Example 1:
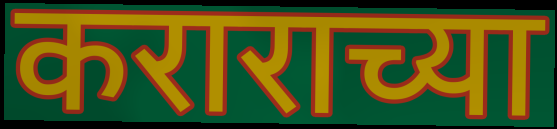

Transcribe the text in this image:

कराराच्या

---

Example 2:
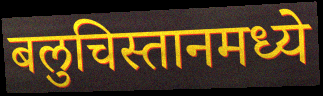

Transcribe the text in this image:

बलुचिस्तानमध्ये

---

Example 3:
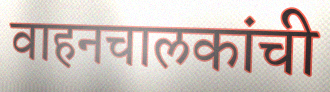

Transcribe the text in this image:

वाहनचालकांची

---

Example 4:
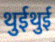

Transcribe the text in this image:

थुईथुई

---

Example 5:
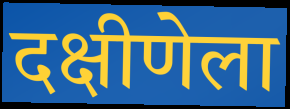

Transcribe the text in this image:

दक्षीणेला